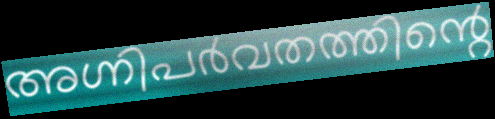
അഗ്നിപർവതത്തിന്റെ